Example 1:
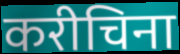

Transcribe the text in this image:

करीचिना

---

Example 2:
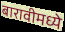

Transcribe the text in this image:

बारावीमध्ये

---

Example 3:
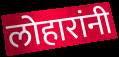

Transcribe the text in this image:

लोहारांनी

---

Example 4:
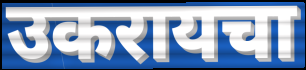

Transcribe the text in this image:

उकरायचा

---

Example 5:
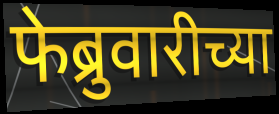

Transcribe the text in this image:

फेब्रुवारीच्या